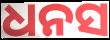
ଧନସ